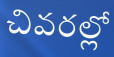
చివరల్లో